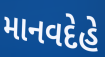
માનવદેહે